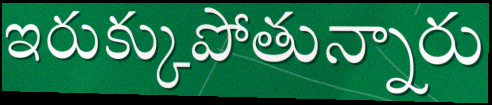
ఇరుక్కుపోతున్నారు